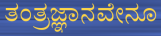
ತಂತ್ರಜ್ಞಾನವೇನೂ